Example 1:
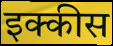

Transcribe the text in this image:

इक्‍कीस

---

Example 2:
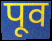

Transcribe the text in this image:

पूव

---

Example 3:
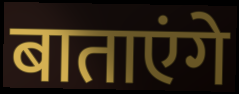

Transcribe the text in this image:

बाताएंगे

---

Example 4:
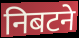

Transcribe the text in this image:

निबटने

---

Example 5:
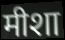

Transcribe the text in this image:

मीशा